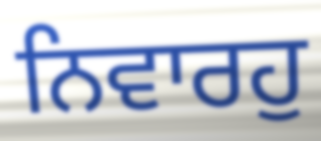
ਨਿਵਾਰਹੁ